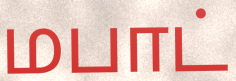
மபாட்